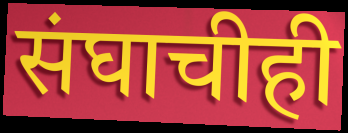
संघाचीही